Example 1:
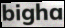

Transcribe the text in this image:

bigha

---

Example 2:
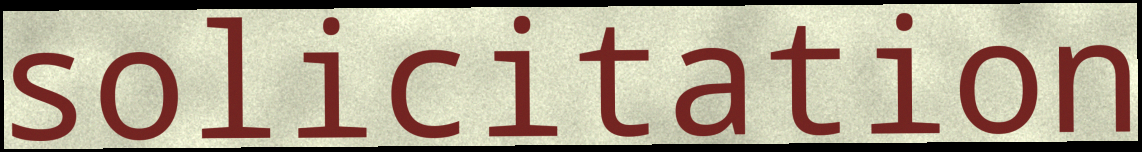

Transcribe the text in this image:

solicitation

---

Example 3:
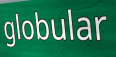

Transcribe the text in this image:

globular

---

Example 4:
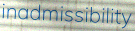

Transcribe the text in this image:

inadmissibility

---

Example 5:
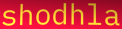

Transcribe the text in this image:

shodhla